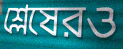
শ্লেষেরও